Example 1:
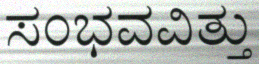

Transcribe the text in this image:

ಸಂಭವವಿತ್ತು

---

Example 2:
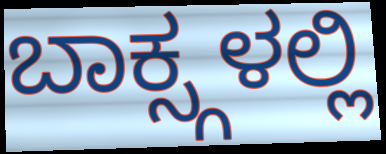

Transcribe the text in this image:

ಬಾಕ್ಸ್ಗಳಲ್ಲಿ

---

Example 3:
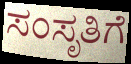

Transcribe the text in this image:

ಸಂಸೃತಿಗೆ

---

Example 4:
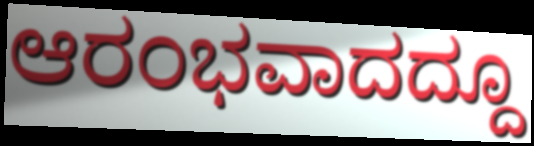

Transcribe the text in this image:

ಆರಂಭವಾದದ್ದೂ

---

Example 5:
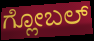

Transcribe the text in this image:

ಗ್ಲೋಬಲ್